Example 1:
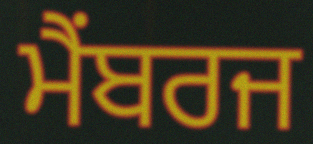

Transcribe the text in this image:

ਮੈਂਬਰਜ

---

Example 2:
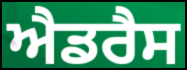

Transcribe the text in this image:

ਐਡਰੈਸ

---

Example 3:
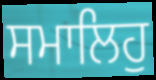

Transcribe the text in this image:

ਸਮਾਲਿਹੁ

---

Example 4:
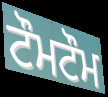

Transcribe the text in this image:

ਟੌਮਟੌਮ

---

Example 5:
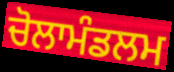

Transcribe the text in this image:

ਚੋਲਾਮੰਡਲਮ